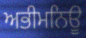
ਅਭੀਮਨਿਊ